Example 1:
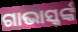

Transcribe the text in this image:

ଗାଭାସ୍କର୍ଙ୍କ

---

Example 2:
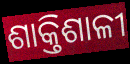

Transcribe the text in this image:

ଶାକ୍ତିଶାଳୀ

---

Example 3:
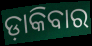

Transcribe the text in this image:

ଡ଼ାକିବାର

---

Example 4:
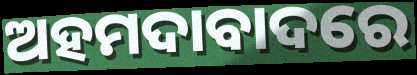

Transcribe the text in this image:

ଅହମଦାବାଦରେ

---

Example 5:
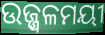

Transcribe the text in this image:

ଉଜ୍ଜ୍ୱଳମୟୀ